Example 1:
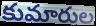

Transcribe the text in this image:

కుమారుల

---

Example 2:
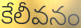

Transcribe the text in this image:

కేలీవనం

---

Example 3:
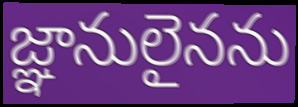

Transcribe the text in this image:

జ్ఞానులైనను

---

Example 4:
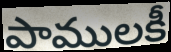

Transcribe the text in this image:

పాములకీ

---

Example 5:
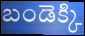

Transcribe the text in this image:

బండెక్కి